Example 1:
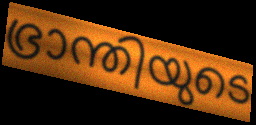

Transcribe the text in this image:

ഭ്രാന്തിയുടെ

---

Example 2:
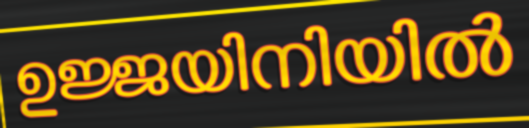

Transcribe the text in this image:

ഉജ്ജയിനിയിൽ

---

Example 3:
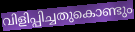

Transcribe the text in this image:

വിളിപ്പിച്ചതുകൊണ്ടും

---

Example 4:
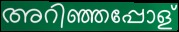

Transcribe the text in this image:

അറിഞ്ഞപ്പോള്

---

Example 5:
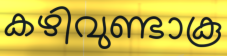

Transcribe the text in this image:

കഴിവുണ്ടാകൂ